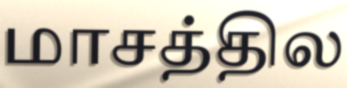
மாசத்தில